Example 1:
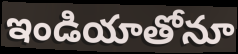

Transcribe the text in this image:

ఇండియాతోనూ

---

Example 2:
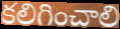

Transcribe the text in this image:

కలిగించాలి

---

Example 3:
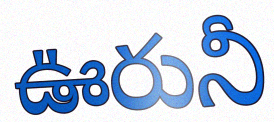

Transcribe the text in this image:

ఊరునీ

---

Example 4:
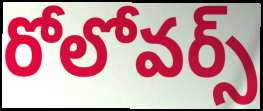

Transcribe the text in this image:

రోలోవర్స్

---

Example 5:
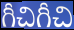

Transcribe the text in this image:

గీచిగీచి